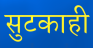
सुटकाही